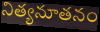
నిత్యనూతనం